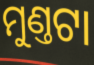
ମୁଣ୍ତଟା